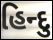
હિન્દુ